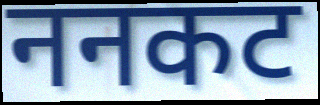
ननकट